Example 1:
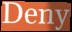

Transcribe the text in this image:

Deny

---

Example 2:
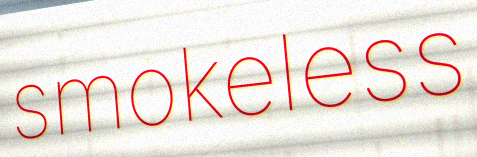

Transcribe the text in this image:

smokeless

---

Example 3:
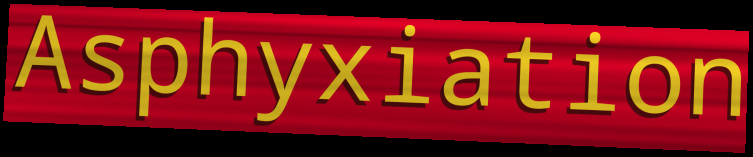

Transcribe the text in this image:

Asphyxiation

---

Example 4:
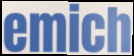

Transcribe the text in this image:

emich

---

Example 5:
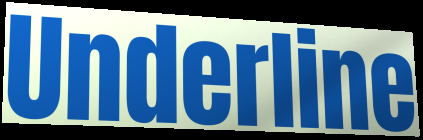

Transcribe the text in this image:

Underline